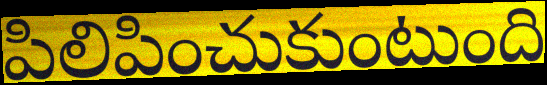
పిలిపించుకుంటుంది